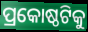
ପ୍ରକୋଷ୍ଠଟିକୁ